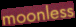
moonless